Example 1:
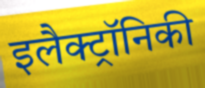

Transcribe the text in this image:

इलैक्ट्रॉनिकी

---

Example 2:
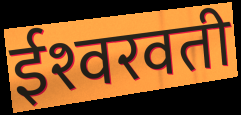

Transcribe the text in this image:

ईश्वरवती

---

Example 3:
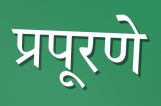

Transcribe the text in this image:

प्रपूरणे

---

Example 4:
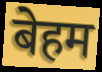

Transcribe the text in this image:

बेहम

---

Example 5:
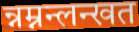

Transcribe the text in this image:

न्नम्नन्लन्खत